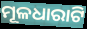
ମୂଳଧାରାଟି